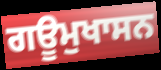
ਗਊਮੁਖਾਸਨ